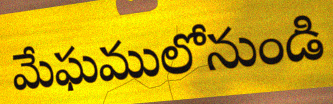
మేఘములోనుండి